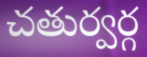
చతుర్వర్గ